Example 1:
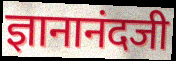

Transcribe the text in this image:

ज्ञानानंदजी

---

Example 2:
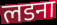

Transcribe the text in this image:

लडना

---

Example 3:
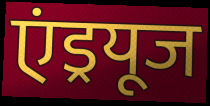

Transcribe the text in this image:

एंड्रयूज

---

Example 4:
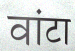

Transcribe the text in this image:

वांटा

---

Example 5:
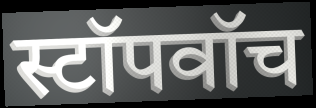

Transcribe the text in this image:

स्टॉपवॉच